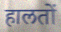
हालतों